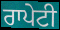
ਰਾਪੇਟੀ